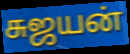
சுஜயன்